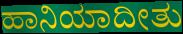
ಹಾನಿಯಾದೀತು